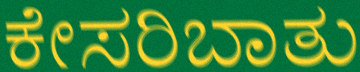
ಕೇಸರಿಬಾತು